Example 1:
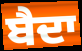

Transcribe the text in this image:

ਬੈਦਾ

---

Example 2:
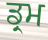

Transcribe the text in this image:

ਡ੍ਰਮ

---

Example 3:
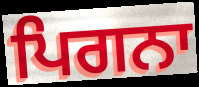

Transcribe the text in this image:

ਪਿਗਨਾ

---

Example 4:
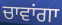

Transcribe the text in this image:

ਚਾਵਾਂਗਾ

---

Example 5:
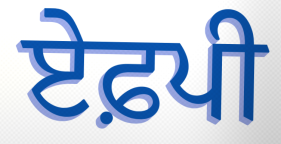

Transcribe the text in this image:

ਏਫ਼ਪੀ